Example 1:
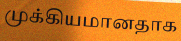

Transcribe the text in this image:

முக்கியமானதாக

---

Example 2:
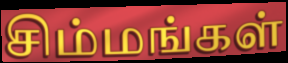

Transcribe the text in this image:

சிம்மங்கள்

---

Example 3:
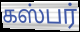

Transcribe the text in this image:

கஸ்பர்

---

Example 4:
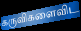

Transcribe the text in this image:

கருவிகளைவிட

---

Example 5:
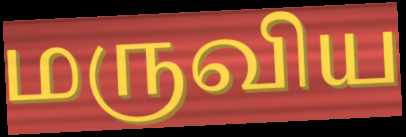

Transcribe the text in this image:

மருவிய